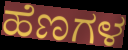
ಹೆಣಗಳ